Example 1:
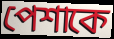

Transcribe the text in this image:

পেশাকে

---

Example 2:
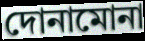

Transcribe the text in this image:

দোনামোনা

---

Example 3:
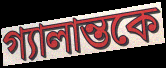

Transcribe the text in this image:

গ্যালান্তকে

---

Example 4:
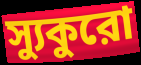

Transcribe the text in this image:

স্যুকুরো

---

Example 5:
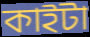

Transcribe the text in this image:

কাইটা